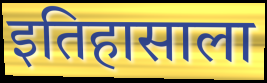
इतिहासाला